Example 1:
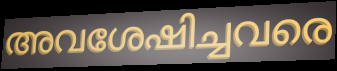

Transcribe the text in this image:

അവശേഷിച്ചവരെ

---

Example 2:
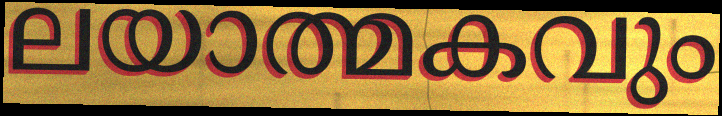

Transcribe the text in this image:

ലയാത്മകവും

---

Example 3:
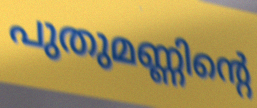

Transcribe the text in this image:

പുതുമണ്ണിന്റെ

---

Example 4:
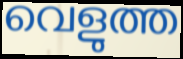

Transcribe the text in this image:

വെളുത്ത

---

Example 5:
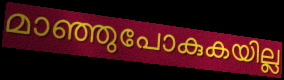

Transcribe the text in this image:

മാഞ്ഞുപോകുകയില്ല